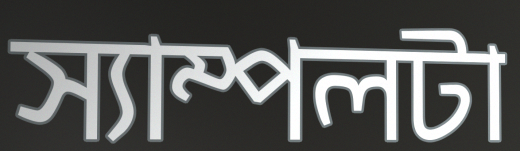
স্যাম্পলটা